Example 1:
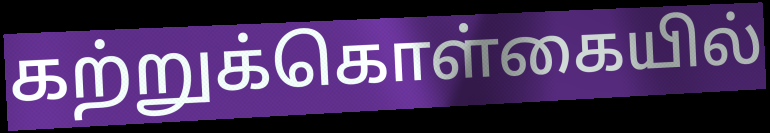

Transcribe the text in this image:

கற்றுக்கொள்கையில்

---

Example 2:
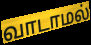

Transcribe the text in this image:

வாடாமல்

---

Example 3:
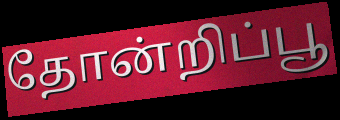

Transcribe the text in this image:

தோன்றிப்பூ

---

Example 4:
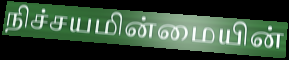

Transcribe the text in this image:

நிச்சயமின்மையின்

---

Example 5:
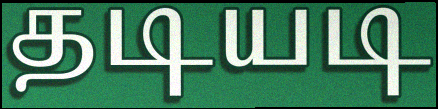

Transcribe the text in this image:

தடியடி